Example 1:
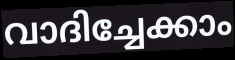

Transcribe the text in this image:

വാദിച്ചേക്കാം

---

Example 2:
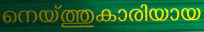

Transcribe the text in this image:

നെയ്ത്തുകാരിയായ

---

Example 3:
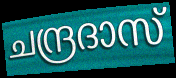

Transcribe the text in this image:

ചന്ദ്രദാസ്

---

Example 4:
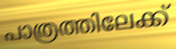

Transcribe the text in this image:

പാത്രത്തിലേക്ക്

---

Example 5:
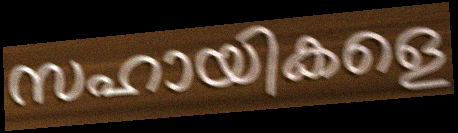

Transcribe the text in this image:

സഹായികളെ